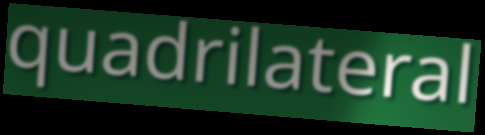
quadrilateral